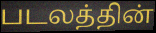
படலத்தின்